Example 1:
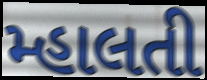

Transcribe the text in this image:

મ્હાલતી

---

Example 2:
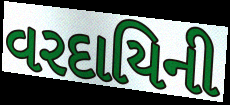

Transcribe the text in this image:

વરદાયિની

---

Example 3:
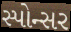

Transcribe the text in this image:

સ્પોન્સર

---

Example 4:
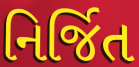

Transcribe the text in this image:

નિર્જિત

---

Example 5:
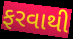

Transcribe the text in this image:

ફરવાથી